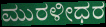
ಮುರಳೀಧರ